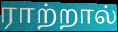
ராற்றால்